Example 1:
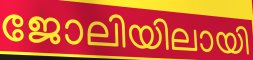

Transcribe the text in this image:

ജോലിയിലായി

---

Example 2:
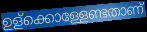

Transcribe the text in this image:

ഉള്ക്കൊള്ളേണ്ടതാണ്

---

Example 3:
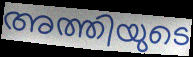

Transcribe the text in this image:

അത്തിയുടെ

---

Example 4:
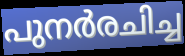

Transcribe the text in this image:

പുനർരചിച്ച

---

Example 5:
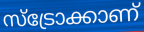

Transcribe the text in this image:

സ്ട്രോക്കാണ്